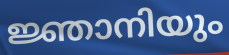
ജ്ഞാനിയും